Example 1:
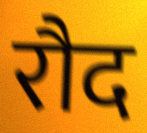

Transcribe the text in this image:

रौद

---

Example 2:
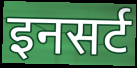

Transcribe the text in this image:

इनसर्ट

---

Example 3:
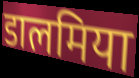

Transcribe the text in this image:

डालमिया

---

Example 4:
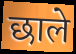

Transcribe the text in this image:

छाले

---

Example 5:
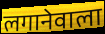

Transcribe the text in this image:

लगानेवाला